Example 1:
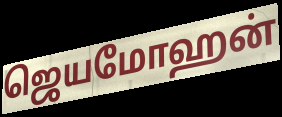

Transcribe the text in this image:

ஜெயமோஹன்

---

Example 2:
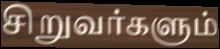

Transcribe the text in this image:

சிறுவர்களும்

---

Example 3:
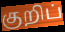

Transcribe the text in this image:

குறிப்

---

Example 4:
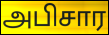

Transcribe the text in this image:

அபிசார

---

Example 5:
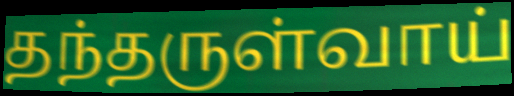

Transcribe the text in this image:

தந்தருள்வாய்